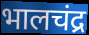
भालचंद्र